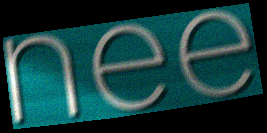
nee